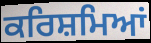
ਕਰਿਸ਼ਮਿਆਂ